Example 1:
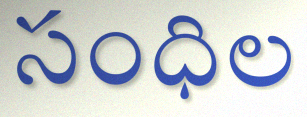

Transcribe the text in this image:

సంధిల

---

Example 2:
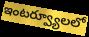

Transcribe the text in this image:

ఇంటర్వ్యూలలో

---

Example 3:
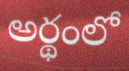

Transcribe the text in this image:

అర్థంలో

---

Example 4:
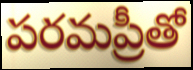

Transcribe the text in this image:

పరమప్రీతో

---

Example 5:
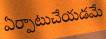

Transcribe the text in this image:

ఏర్పాటుచేయడమే